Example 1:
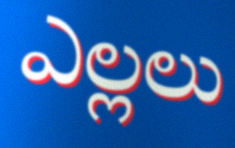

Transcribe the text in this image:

ఎల్లలు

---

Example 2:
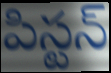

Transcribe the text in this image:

పిస్టన్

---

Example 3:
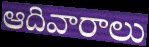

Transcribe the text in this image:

ఆదివారాలు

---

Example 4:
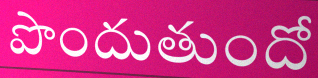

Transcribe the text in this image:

పొందుతుందో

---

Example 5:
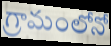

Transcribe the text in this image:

గ్రామంలోనో